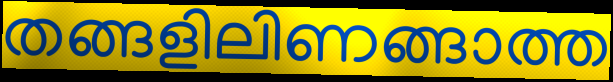
തങ്ങളിലിണങ്ങാത്ത